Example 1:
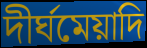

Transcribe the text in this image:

দীর্ঘমেয়াদি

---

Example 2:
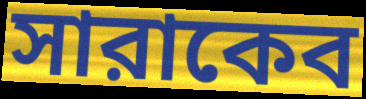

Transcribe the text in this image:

সারাকেব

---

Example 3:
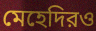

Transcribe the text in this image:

মেহেদিরও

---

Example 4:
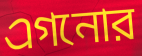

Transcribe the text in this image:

এগনোর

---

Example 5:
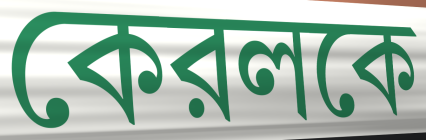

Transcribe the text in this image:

কেরলকে